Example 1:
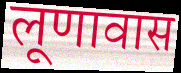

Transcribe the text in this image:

लूणावास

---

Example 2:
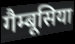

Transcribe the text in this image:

गैम्बूसिया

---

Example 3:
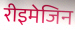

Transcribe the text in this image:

रीइमेजिन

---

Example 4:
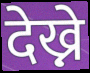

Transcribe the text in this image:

देख्ने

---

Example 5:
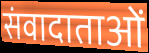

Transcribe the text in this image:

संवादाताओं